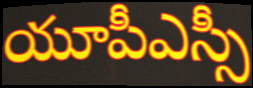
యూపీఎస్సీ